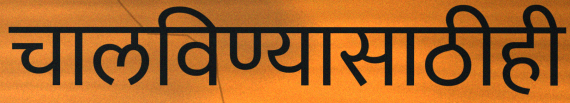
चालविण्यासाठीही